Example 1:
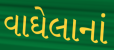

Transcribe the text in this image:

વાઘેલાનાં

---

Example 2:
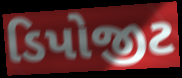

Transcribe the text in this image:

ડિપોજીટ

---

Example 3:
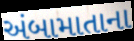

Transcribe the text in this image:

અંબામાતાના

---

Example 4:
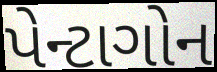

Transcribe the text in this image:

પેન્ટાગોન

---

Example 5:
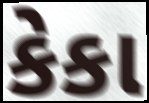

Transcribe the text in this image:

કેકા